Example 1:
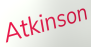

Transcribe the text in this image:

Atkinson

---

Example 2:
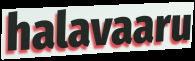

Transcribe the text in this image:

halavaaru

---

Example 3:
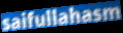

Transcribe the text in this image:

saifullahasm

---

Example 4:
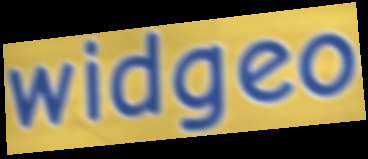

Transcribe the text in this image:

widgeo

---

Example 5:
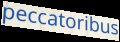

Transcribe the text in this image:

peccatoribus